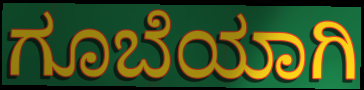
ಗೂಬೆಯಾಗಿ